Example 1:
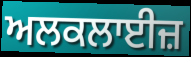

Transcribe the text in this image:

ਅਲਕਲਾਈਜ਼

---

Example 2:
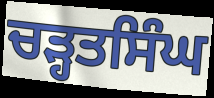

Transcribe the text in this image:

ਚੜ੍ਹਤਸਿੰਘ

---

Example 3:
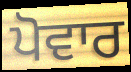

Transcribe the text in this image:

ਪੋਵਾਰ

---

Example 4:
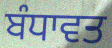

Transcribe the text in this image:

ਬੰਧਾਵਤ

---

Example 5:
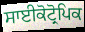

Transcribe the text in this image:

ਸਾਈਕੋਟ੍ਰੋਪਿਕ